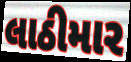
લાઠીમાર